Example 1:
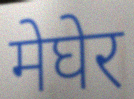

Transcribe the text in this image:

मेघेर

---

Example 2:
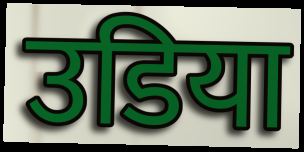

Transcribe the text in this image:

उडिया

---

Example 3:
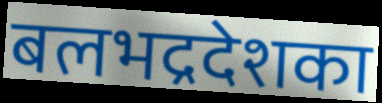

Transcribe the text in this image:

बलभद्रदेशका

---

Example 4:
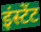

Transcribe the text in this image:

इंस्टेंट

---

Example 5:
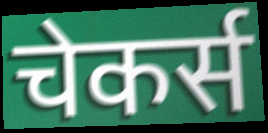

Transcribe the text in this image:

चेकर्स